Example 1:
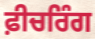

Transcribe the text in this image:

ਫ਼ੀਚਰਿੰਗ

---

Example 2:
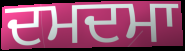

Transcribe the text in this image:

ਦਮਦਮਾ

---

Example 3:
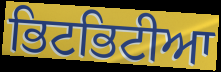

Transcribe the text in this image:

ਭਿਟਭਿਟੀਆ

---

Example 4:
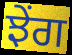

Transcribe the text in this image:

ਝੇਂਗ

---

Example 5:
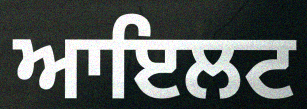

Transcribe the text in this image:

ਆਇਲਟ